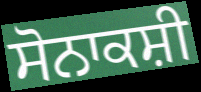
ਸੋਨਾਕਸ਼ੀ